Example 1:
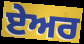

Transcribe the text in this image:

ਏੇਅਰ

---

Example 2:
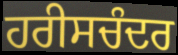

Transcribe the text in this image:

ਹਰੀਸਚੰਦਰ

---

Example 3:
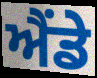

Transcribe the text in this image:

ਐਂਡੇ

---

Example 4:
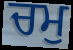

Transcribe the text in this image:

ਚਮੁ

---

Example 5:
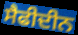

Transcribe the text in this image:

ਸੈਫੀਦੀਨ